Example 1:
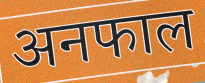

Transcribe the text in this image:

अनफाल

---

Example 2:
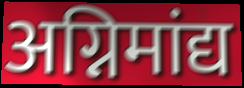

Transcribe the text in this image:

अग्निमांद्य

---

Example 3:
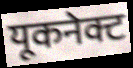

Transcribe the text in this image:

यूकनेक्ट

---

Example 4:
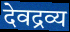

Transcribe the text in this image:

देवद्रव्य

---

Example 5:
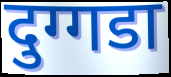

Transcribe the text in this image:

दुग्गडा